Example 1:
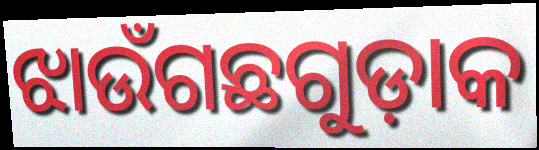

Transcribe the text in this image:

ଝାଉଁଗଛଗୁଡ଼ାକ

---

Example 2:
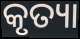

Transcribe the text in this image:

କୃତ୍ୟା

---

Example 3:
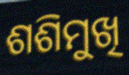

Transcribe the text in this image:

ଶଶିମୁଖି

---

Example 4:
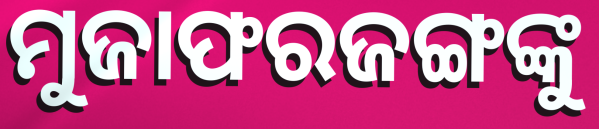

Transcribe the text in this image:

ମୁଜାଫରଜଙ୍ଗଙ୍କୁ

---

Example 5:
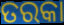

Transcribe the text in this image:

ତରକା